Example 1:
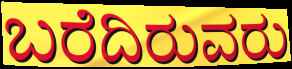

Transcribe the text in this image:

ಬರೆದಿರುವರು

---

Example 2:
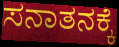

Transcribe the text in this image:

ಸನಾತನಕ್ಕೆ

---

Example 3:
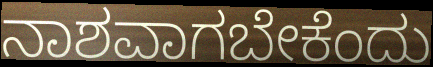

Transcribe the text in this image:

ನಾಶವಾಗಬೇಕೆಂದು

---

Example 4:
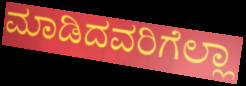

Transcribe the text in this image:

ಮಾಡಿದವರಿಗೆಲ್ಲಾ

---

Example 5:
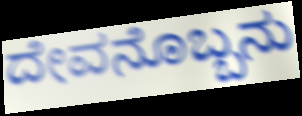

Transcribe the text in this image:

ದೇವನೊಬ್ಬನು